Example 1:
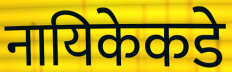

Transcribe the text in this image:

नायिकेकडे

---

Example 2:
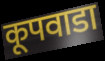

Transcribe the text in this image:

कूपवाडा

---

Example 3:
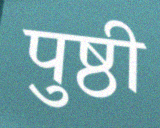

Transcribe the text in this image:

पुष्ठी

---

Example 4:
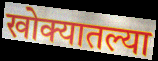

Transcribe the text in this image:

खोक्यातल्या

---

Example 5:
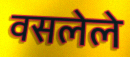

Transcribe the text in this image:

वसलेले